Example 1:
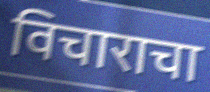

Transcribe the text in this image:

विचाराचा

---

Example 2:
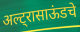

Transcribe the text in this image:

अल्ट्रासाऊंडचे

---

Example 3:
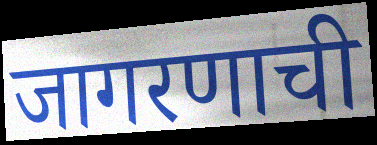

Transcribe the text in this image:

जागरणाची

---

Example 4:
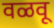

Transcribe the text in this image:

वळवू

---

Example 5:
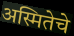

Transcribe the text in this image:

अस्मितेचे